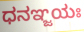
ಧನಞ್ಜಯಃ